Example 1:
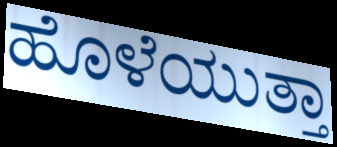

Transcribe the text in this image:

ಹೊಳೆಯುತ್ತಾ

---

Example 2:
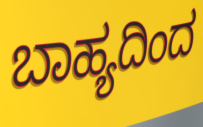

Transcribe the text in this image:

ಬಾಹ್ಯದಿಂದ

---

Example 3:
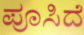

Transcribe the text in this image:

ಪೂಸಿದೆ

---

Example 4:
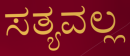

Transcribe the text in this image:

ಸತ್ಯವಲ್ಲ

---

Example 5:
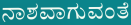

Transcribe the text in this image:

ನಾಶವಾಗುವಂತೆ